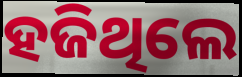
ହଜିଥିଲେ